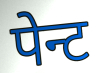
पेन्ट